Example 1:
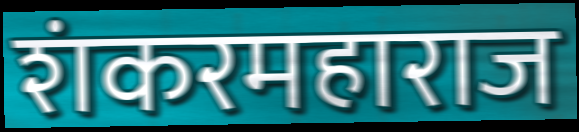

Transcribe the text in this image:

शंकरमहाराज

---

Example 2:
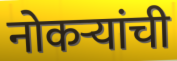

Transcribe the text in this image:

नोकऱ्यांची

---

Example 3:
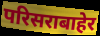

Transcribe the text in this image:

परिसराबाहेर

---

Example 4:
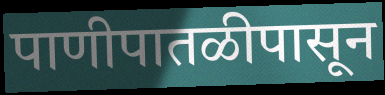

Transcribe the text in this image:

पाणीपातळीपासून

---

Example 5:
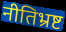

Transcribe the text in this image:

नीतिभ्रष्ट